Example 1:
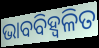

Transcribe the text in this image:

ଭାବବିହ୍ବଳିତ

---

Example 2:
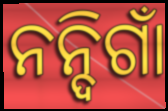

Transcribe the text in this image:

ନନ୍ଦିଗାଁ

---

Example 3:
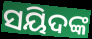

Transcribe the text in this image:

ସୟିଦଙ୍କ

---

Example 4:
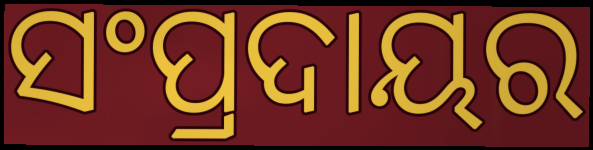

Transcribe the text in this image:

ସଂପ୍ରଦାୟର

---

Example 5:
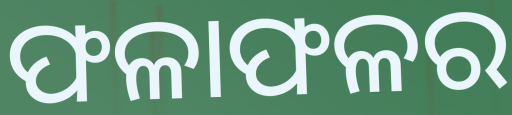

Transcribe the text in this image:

ଫଳାଫଳର